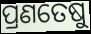
ପ୍ରଣତେଷୁ